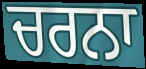
ਚਰਨਾ